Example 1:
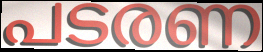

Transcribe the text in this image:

പടരണ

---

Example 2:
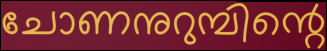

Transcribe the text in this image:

ചോണനുറുമ്പിന്റെ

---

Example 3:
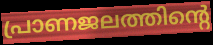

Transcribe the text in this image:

പ്രാണജലത്തിന്റെ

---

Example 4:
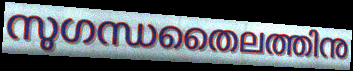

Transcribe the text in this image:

സുഗന്ധതൈലത്തിനു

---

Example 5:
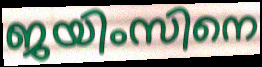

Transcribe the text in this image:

ജയിംസിനെ